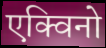
एक्विनो